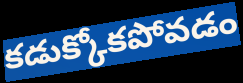
కడుక్కోకపోవడం